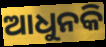
ଆଧୁନକି